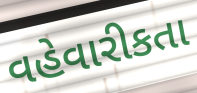
વહેવારીકતા